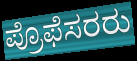
ಪ್ರೊಫೆಸರರು